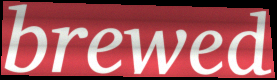
brewed